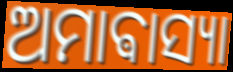
ଅମାଵାସ୍ୟା